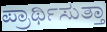
ಪ್ರಾರ್ಥಿಸುತ್ತಾ